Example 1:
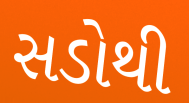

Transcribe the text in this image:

સડોથી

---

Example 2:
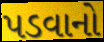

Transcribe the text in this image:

પડવાનો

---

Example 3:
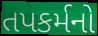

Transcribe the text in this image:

તપકર્મનો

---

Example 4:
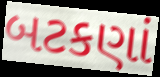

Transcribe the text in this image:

બટકણાં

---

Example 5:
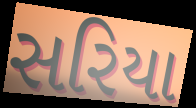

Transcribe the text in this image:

સરિયા